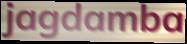
jagdamba